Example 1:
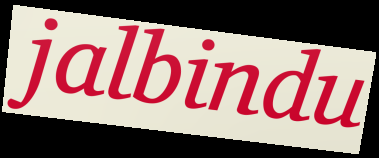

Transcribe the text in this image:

jalbindu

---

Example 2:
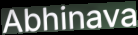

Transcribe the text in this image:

Abhinava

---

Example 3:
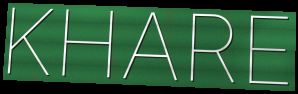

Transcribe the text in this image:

KHARE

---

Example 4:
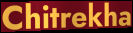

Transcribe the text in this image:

Chitrekha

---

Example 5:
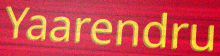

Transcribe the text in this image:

Yaarendru